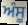
ਅੰਸੂ